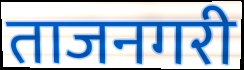
ताजनगरी